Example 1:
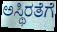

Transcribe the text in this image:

ಅಸ್ಥಿರತೆಗೆ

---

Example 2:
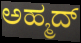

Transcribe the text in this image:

ಅಹ್ಮದ್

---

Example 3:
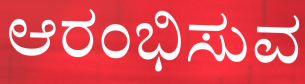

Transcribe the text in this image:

ಆರಂಭಿಸುವ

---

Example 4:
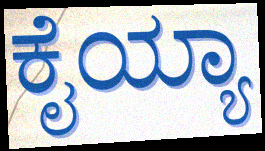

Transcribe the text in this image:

ಕೈಯ್ಯಾ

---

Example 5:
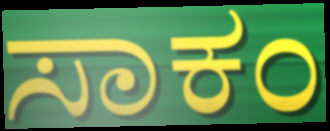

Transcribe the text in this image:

ಸಾಕಂ